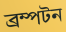
ব্রম্পটন